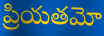
ప్రియతమో